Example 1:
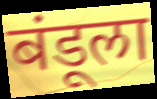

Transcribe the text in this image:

बंडूला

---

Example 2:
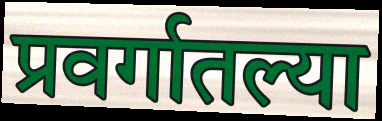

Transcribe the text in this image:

प्रवर्गातल्या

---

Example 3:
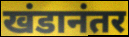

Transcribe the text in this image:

खंडानंतर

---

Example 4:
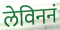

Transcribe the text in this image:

लेविननं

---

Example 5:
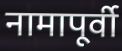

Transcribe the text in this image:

नामापूर्वी